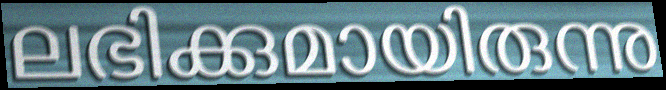
ലഭിക്കുമായിരുന്നു